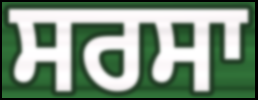
ਸਰਸਾ